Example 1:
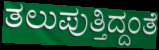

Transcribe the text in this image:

ತಲುಪುತ್ತಿದ್ದಂತೆ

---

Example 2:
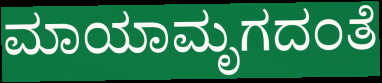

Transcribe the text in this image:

ಮಾಯಾಮೃಗದಂತೆ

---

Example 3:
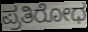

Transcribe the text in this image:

ಪ್ರತಿರೋಧ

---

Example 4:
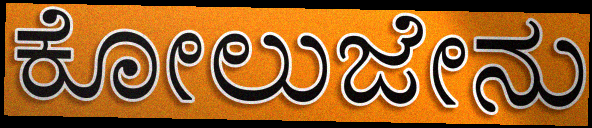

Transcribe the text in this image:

ಕೋಲುಜೇನು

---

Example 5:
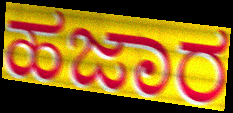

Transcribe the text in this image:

ಹಜಾರ